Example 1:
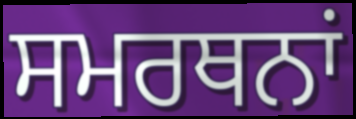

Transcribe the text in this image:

ਸਮਰਥਨਾਂ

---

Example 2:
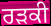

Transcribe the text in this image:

ਰੜਕੀ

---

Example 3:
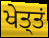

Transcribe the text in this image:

ਖੇਤ੍ਤਂ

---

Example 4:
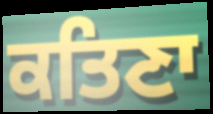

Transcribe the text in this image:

ਕਤਿਣਾ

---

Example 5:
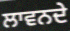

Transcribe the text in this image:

ਲਾਵਨਦੇ